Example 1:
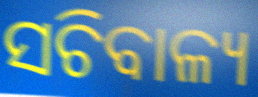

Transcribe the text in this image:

ସଚିବାଳ୍ୟ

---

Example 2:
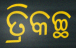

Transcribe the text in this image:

ତ୍ରିକଚ୍ଛ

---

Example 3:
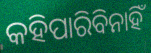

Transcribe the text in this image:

କହିପାରିବିନାହିଁ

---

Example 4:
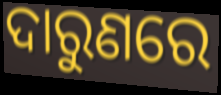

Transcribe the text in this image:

ଦାରୁଣରେ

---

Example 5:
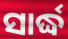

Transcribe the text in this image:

ସାର୍ଦ୍ଧ